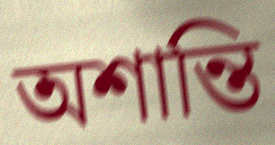
অশান্তি